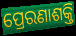
ପ୍ରେରଣାଶକ୍ତି